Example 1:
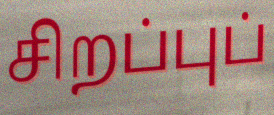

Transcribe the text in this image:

சிறப்புப்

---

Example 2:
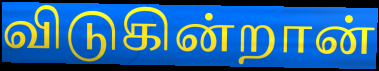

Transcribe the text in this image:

விடுகின்றான்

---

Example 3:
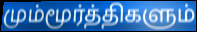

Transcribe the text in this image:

மும்மூர்த்திகளும்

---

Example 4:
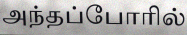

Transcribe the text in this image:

அந்தப்போரில்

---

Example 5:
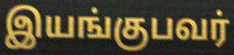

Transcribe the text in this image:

இயங்குபவர்